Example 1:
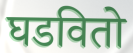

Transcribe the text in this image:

घडवितो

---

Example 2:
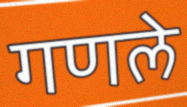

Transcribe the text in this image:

गणले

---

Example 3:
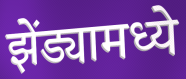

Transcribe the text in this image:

झेंड्यामध्ये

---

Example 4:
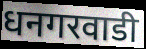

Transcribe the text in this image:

धनगरवाडी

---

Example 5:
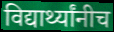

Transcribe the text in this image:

विद्यार्थ्यांनीच